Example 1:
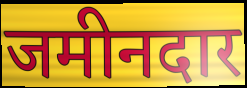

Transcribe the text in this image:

जमीनदार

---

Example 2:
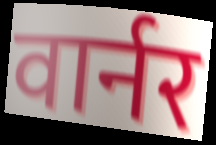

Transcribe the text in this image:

वार्नर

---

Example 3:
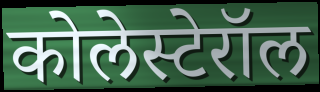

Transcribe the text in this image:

कोलेस्टेरॉल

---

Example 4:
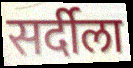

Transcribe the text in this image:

सर्दीला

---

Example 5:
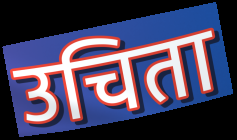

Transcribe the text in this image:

उचिता